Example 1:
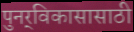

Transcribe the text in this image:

पुनर्विकासासाठी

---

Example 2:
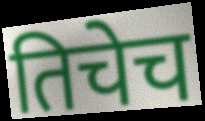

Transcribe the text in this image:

तिचेच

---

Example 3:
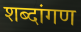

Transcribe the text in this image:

शब्दांगण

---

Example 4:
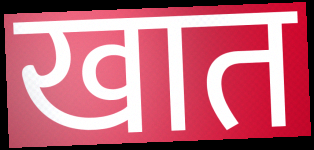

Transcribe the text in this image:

खात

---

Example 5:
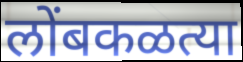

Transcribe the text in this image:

लोंबकळत्या